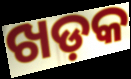
ଖଡ଼କ